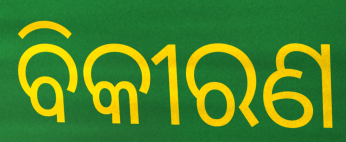
ବିକୀରଣ